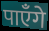
पाऍंगे